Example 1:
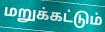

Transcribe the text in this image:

மறுக்கட்டும்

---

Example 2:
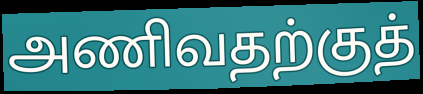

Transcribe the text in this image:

அணிவதற்குத்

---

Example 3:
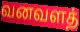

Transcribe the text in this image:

வனவளத்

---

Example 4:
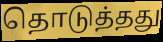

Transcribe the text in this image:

தொடுத்தது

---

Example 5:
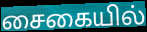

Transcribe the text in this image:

சைகையில்